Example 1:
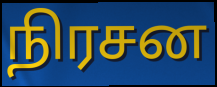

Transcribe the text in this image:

நிரசன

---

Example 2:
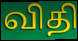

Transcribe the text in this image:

விதி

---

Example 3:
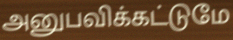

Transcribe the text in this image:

அனுபவிக்கட்டுமே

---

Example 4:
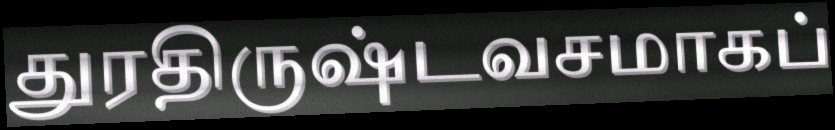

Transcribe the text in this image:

துரதிருஷ்டவசமாகப்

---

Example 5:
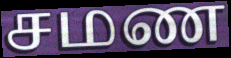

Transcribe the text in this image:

சமண